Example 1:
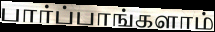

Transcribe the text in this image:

பார்ப்பாங்களாம்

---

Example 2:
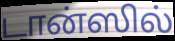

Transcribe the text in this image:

டான்ஸில்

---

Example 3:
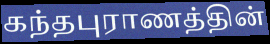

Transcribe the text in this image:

கந்தபுராணத்தின்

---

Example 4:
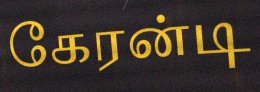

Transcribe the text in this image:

கேரன்டி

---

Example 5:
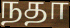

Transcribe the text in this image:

நதா